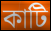
কাটি